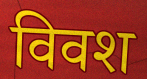
विवश